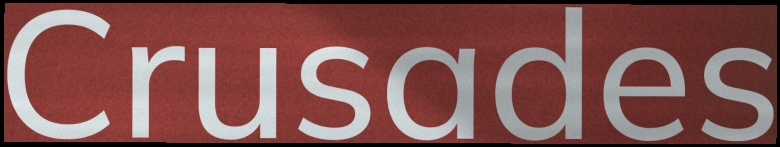
Crusades